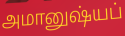
அமானுஷ்யப்